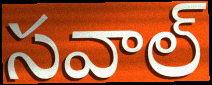
సవాల్